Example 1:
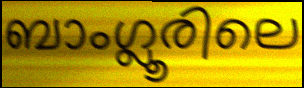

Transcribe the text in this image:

ബാംഗ്ലൂരിലെ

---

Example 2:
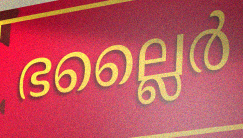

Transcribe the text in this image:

ഭല്ലൈർ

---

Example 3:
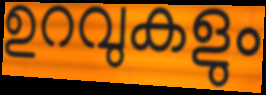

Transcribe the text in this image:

ഉറവുകളും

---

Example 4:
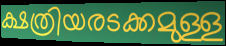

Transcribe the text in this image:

ക്ഷത്രിയരടക്കമുള്ള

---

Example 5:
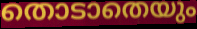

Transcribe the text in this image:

തൊടാതെയും